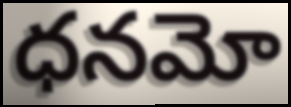
ధనమో